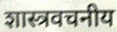
शास्त्रवचनीय